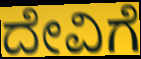
ದೇವಿಗೆ